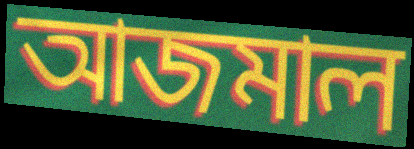
আজমাল